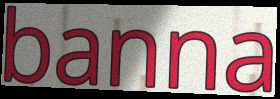
banna